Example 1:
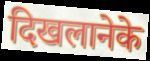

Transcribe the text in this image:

दिखलानेके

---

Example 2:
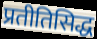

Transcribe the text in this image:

प्रतीतिसिद्ध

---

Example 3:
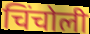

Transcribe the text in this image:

चिंचोली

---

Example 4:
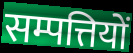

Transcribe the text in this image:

सम्‍पत्तियों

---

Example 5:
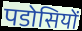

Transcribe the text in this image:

पडोसियों